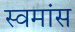
स्वमांस